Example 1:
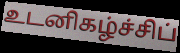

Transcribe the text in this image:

உடனிகழ்ச்சிப்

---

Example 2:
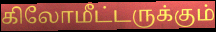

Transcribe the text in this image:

கிலோமீட்டருக்கும்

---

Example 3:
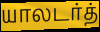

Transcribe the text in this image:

யாலடர்த்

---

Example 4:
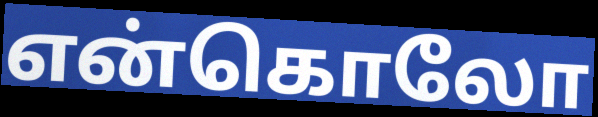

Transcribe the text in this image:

என்கொலோ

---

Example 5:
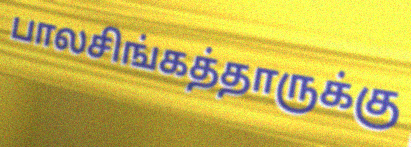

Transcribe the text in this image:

பாலசிங்கத்தாருக்கு